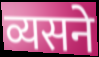
व्यसने